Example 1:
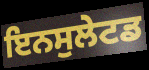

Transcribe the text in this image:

ਇਨਸੁਲੇਟਡ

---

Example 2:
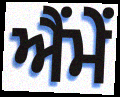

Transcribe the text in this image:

ਐਂਮੇਂ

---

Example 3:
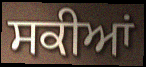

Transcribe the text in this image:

ਸਕੀਆਂ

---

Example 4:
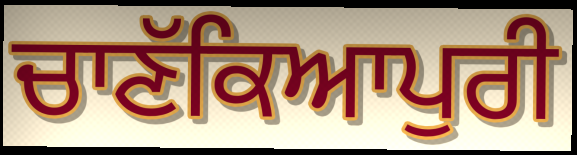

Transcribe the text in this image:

ਚਾਣੱਕਿਆਪੁਰੀ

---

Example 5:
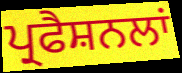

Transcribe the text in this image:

ਪ੍ਰਫੈਸ਼ਨਲਾਂ